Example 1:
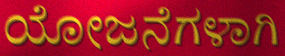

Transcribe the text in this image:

ಯೋಜನೆಗಳಾಗಿ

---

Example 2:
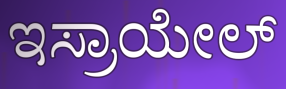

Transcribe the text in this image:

ಇಸ್ರಾಯೇಲ್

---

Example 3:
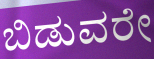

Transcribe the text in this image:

ಬಿಡುವರೇ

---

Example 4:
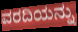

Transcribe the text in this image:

ವರದಿಯನ್ನು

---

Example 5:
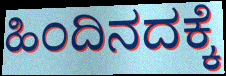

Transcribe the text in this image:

ಹಿಂದಿನದಕ್ಕೆ